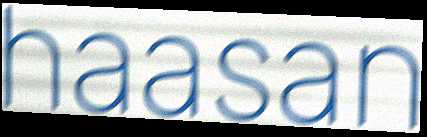
haasan